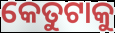
କେତୁଟାକୁ